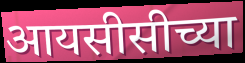
आयसीसीच्या